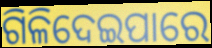
ଗିଳିଦେଇପାରେ